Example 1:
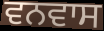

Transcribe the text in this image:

ਵਨਵਾਸ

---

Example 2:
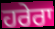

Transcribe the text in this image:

ਹਰੇਰਾ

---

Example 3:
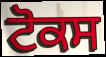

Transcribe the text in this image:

ਟੋਕਸ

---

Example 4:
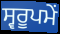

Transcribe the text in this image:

ਸ੍ਵਰੂਪਮੇਂ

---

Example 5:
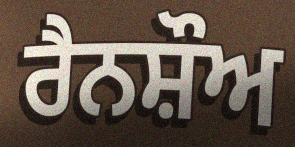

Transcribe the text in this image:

ਰੈਨਸ਼ੌਅ